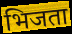
भिजता